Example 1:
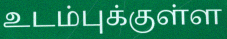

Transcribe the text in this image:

உடம்புக்குள்ள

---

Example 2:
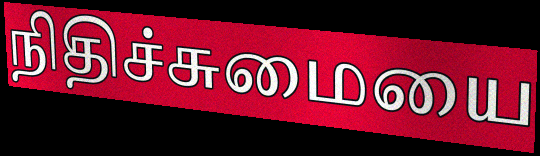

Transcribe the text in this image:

நிதிச்சுமையை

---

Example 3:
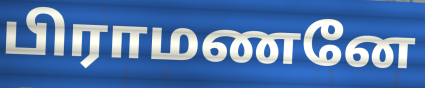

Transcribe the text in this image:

பிராமணனே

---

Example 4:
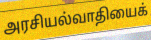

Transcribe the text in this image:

அரசியல்வாதியைக்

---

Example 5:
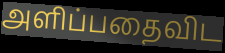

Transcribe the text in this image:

அளிப்பதைவிட